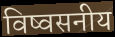
विष्वसनीय